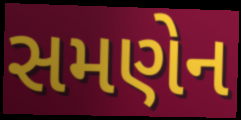
સમણેન